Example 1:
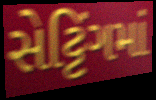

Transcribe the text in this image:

સેટ્ટિંગમાં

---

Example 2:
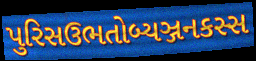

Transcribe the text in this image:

પુરિસઉભતોબ્યઞ્જનકસ્સ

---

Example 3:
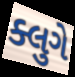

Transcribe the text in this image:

ક્લુગે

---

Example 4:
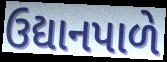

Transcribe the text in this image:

ઉદ્યાનપાળે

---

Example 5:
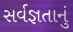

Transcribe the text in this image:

સર્વજ્ઞતાનું